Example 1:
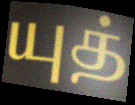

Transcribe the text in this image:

யுத்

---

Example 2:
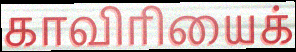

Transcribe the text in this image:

காவிரியைக்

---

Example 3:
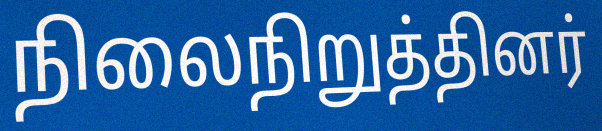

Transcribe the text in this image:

நிலைநிறுத்தினர்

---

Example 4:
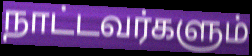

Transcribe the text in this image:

நாட்டவர்களும்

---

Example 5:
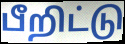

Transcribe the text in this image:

பீறிட்டு